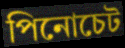
পিনোচেট